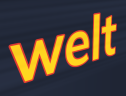
welt